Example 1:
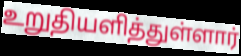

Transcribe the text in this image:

உறுதியளித்துள்ளார்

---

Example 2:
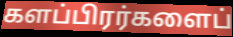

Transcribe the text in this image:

களப்பிரர்களைப்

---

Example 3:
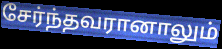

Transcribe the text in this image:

சேர்ந்தவரானாலும்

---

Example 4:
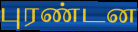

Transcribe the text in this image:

புரண்டன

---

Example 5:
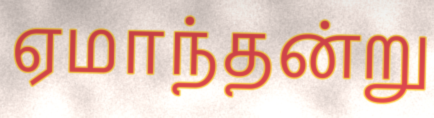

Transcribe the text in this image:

ஏமாந்தன்று